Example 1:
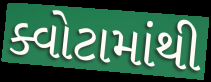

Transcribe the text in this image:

ક્વોટામાંથી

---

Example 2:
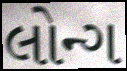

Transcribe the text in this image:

લોન્ગ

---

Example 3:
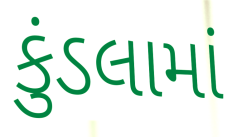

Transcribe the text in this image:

કુંડલામાં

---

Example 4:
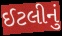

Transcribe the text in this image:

ઈટલીનું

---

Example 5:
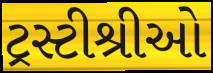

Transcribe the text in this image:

ટ્રસ્ટીશ્રીઓ